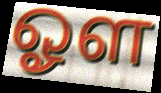
ஓள